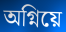
অগ্নিয়ে